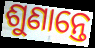
ଶୁଣାନ୍ତେ